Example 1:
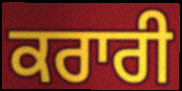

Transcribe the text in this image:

ਕਰਾਰੀ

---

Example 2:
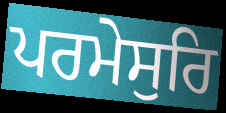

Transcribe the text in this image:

ਪਰਮੇਸੁਰਿ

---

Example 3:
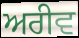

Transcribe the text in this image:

ਅਰੀਵ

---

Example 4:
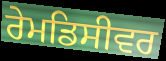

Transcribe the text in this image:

ਰੇਮਡਿਸੀਵਰ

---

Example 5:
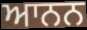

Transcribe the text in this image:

ਆਨਨ